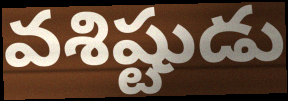
వశిష్టుడు